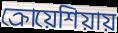
ক্রোয়েশিয়ায়